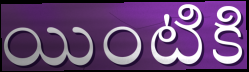
యింటికి